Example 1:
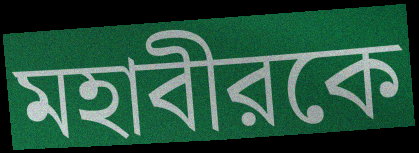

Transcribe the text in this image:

মহাবীরকে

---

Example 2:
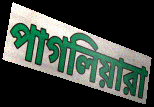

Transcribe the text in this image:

পাগলিয়ারা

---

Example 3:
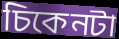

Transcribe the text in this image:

চিকেনটা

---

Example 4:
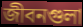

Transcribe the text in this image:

জীবনগুলা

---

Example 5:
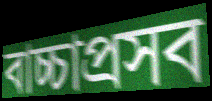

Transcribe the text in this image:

বাচ্চাপ্রসব